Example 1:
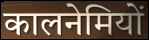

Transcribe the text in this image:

कालनेमियों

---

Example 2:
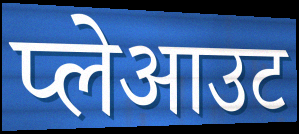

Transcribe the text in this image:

प्लेआउट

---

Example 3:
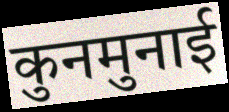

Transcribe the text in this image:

कुनमुनाई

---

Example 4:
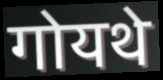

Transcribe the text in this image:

गोयथे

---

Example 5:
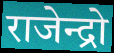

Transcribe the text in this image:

राजेन्द्रो